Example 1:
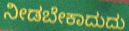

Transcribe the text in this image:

ನೀಡಬೇಕಾದುದು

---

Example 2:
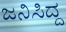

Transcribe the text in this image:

ಜನಿಸಿದ್ದ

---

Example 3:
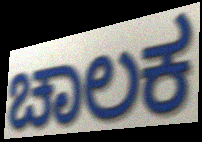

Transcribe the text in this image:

ಚಾಲಕ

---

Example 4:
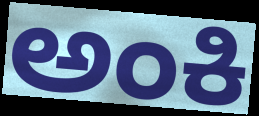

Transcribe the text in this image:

ಅಂಕಿ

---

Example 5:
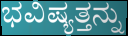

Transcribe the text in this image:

ಭವಿಷ್ಯತ್ತನ್ನು